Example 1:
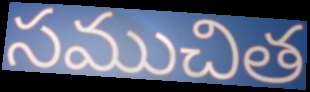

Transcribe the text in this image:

సముచిత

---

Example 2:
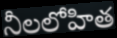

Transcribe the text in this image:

నీలలోహిత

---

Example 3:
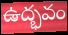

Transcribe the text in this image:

ఉద్భవం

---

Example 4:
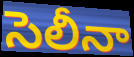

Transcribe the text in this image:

సెలీనా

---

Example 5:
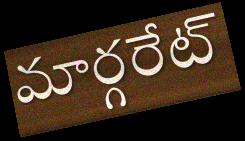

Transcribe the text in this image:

మార్గరేట్